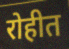
रोहीत